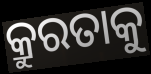
କ୍ରୁରତାକୁ